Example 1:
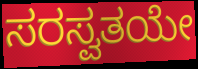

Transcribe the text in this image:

ಸರಸ್ವತಯೇ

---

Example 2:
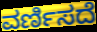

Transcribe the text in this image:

ವರ್ಣಿಸದೆ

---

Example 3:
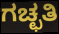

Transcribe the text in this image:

ಗಚ್ಛತಿ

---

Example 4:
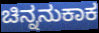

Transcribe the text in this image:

ಚಿನ್ನನುಕಾಕ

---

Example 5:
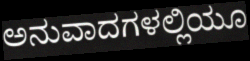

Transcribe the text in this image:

ಅನುವಾದಗಳಲ್ಲಿಯೂ